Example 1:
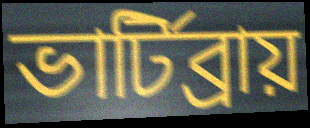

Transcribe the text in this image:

ভার্টিব্রায়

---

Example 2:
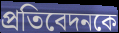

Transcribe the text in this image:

প্রতিবেদনকে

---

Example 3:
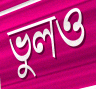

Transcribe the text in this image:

ভুলও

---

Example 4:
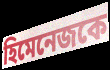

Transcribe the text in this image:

হিমেনেজকে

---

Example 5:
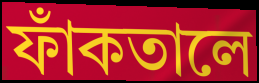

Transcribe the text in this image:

ফাঁকতালে